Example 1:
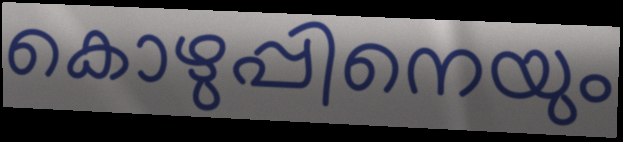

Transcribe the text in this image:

കൊഴുപ്പിനെയും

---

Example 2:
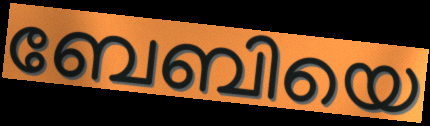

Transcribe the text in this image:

ബേബിയെ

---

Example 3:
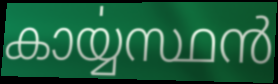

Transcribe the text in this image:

കാൎയ്യസ്ഥൻ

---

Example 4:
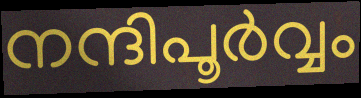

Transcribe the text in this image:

നന്ദിപൂർവ്വം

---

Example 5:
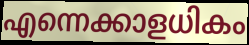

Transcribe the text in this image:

എന്നെക്കാളധികം